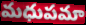
మధుపమా